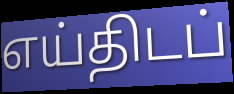
எய்திடப்